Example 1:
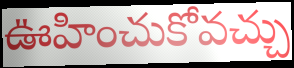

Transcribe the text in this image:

ఊహించుకోవచ్చు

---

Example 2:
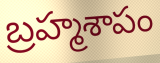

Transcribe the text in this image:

బ్రహ్మశాపం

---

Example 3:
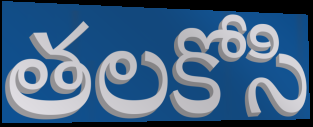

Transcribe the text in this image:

తలకోసి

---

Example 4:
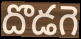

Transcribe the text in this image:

దొడగె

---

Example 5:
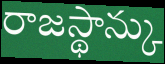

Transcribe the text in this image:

రాజస్థాన్కు